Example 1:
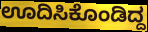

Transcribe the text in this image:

ಊದಿಸಿಕೊಂಡಿದ್ದ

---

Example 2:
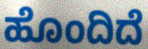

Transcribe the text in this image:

ಹೊಂದಿದೆ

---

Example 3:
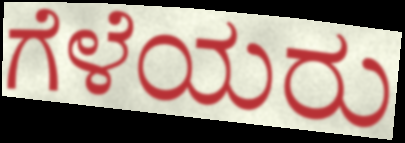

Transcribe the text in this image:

ಗೆಳೆಯರು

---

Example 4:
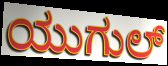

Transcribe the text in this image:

ಯುಗುಲ್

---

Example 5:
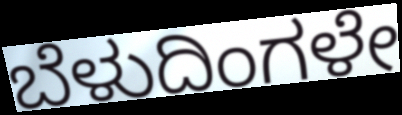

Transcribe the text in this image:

ಬೆಳುದಿಂಗಳೇ